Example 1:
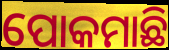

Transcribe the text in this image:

ପୋକମାଛି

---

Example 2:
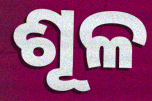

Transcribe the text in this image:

ଶୂଳ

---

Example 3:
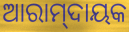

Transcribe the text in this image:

ଆରାମ୍‌ଦାୟକ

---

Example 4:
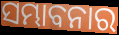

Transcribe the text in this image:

ସମ୍ଭାବନାର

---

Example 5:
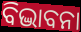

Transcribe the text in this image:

ବିଦ୍ଭାବନା